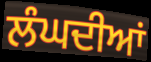
ਲੰਘਦੀਆਂ